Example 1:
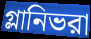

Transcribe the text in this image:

গ্লানিভরা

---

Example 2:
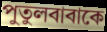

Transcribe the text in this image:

পুতুলবাবাকে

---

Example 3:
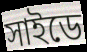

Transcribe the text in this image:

সাইডে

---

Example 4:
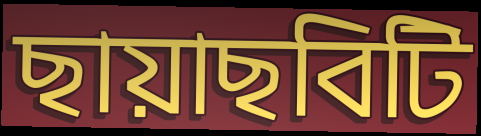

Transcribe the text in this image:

ছায়াছবিটি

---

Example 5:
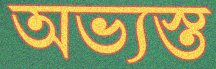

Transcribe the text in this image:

অভ্যস্ত